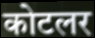
कोटलर